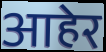
आहेर